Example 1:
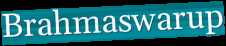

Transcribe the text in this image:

Brahmaswarup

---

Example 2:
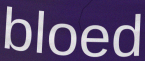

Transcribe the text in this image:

bloed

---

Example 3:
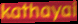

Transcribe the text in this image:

kathayai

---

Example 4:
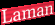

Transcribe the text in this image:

Laman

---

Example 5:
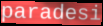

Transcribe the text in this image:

paradesi